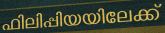
ഫിലിപ്പിയയിലേക്ക്